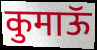
कुमाऊॅ